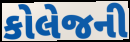
કોલેજની